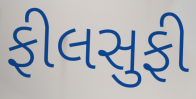
ફીલસુફી